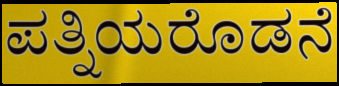
ಪತ್ನಿಯರೊಡನೆ